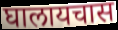
घालायचास